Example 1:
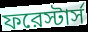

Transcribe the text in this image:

ফরেস্টার্স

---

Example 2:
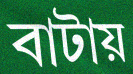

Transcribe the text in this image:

বাটায়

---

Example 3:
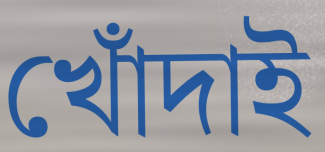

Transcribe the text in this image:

খোঁদাই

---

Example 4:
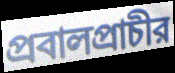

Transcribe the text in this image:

প্রবালপ্রাচীর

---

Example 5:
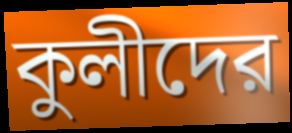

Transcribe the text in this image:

কুলীদের